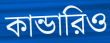
কান্ডারিও